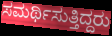
ಸಮರ್ಥಿಸುತ್ತಿದ್ದರು